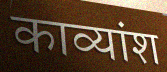
काव्यांश